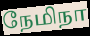
நேமிநா